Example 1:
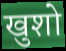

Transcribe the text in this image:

खुशो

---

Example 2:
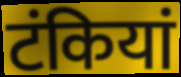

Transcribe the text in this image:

टंकियां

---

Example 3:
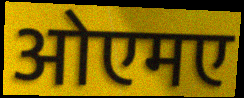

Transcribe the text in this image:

ओएमए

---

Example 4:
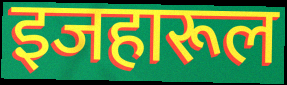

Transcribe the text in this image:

इजहारूल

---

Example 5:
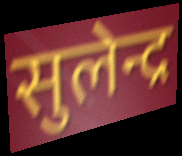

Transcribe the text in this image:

सुलेन्द्र